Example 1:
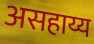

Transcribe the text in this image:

असहाय्य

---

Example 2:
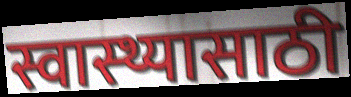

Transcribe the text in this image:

स्वास्थ्यासाठी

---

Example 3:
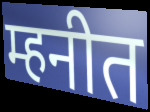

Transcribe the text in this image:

म्हनीत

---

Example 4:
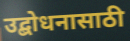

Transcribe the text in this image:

उद्बोधनासाठी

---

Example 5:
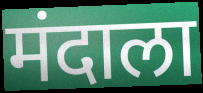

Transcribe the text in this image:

मंदाला